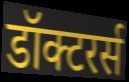
डॉक्टरर्स